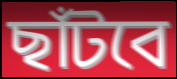
ছাঁটবে